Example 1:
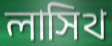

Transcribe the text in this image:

লাসিথ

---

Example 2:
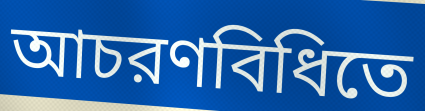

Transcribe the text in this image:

আচরণবিধিতে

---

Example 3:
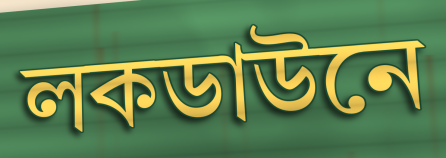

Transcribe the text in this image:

লকডাউনে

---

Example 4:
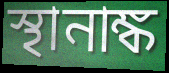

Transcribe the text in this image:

স্থানাঙ্ক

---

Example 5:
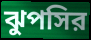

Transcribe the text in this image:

ঝুপসির